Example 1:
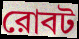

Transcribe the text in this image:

রোবট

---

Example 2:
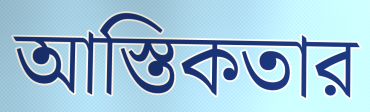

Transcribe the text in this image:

আস্তিকতার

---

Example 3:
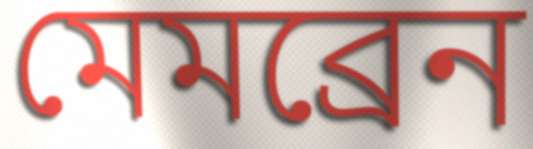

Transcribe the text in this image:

মেমব্রেন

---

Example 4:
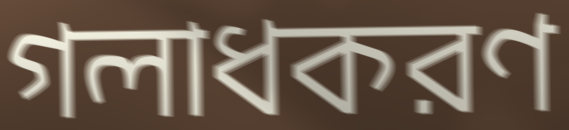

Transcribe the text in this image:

গলাধকরণ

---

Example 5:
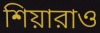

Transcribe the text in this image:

শিয়ারাও